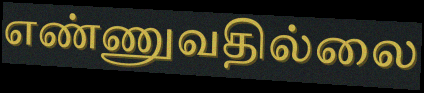
எண்ணுவதில்லை